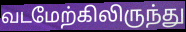
வடமேற்கிலிருந்து